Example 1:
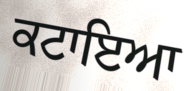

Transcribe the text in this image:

ਕਟਾਇਆ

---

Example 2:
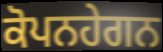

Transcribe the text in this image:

ਕੋਪਨਹੇਗਨ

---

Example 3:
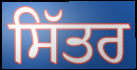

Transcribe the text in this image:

ਸਿੱਤਰ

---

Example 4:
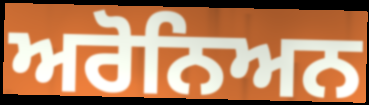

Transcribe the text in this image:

ਅਰੋਨਿਅਨ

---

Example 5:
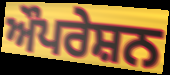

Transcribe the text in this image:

ਔਪਰੇਸ਼ਨ